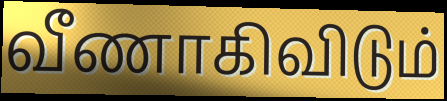
வீணாகிவிடும்